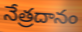
నేత్రదానం